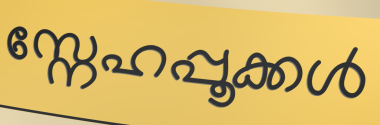
സ്നേഹപ്പൂക്കൾ